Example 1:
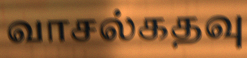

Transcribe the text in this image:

வாசல்கதவு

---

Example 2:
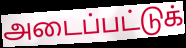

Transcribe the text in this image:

அடைப்பட்டுக்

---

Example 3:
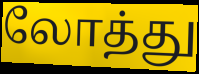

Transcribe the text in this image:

லோத்து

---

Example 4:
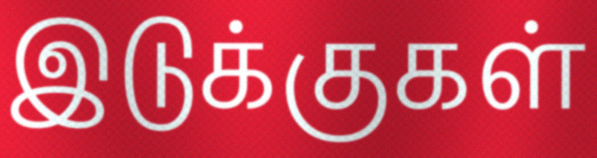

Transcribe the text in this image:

இடுக்குகள்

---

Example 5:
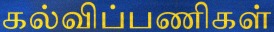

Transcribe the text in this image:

கல்விப்பணிகள்